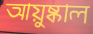
আয়ুষ্কাল